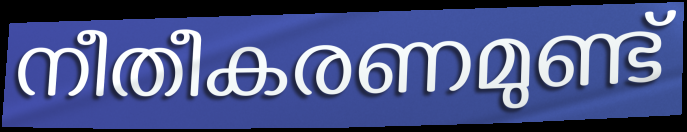
നീതീകരണമുണ്ട്